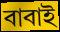
বাবাই